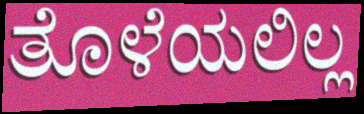
ತೊಳೆಯಲಿಲ್ಲ